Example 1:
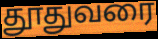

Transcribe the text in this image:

தூதுவரை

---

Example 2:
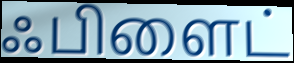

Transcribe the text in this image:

ஃபிளைட்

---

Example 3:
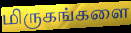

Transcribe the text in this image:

மிருகங்களை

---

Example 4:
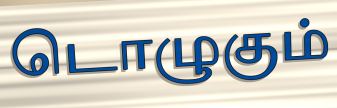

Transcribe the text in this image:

டொழுகும்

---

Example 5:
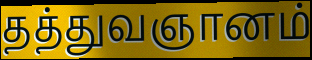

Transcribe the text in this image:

தத்துவஞானம்